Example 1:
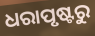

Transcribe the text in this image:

ଧରାପୃଷ୍ଟରୁ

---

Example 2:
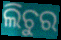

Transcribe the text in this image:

ଲିଚୁର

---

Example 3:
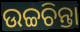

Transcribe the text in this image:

ଉଚ୍ଚଚିନ୍ତା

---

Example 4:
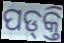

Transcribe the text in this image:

ପଡ୍‌କ୍ତି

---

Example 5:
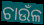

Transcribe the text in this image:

ଚାଉଁଳ